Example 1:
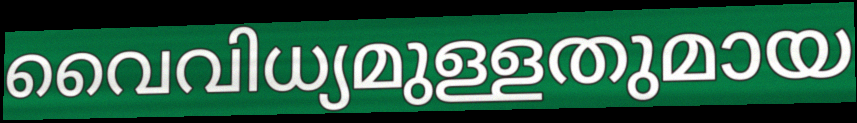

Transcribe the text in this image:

വൈവിധ്യമുള്ളതുമായ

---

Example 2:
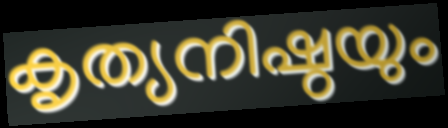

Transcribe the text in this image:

കൃത്യനിഷ്ഠയും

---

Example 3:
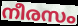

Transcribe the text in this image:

നീരസം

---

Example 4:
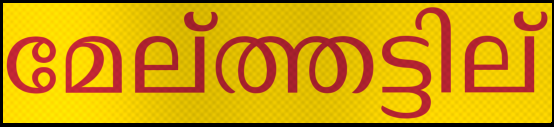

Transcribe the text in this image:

മേല്ത്തട്ടില്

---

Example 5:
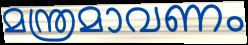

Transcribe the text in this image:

മന്ത്രമാവണം